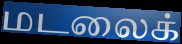
மடலைக்